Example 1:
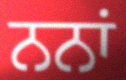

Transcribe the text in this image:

ਨਨਾਂ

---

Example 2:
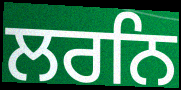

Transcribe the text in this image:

ਲਰਨਿ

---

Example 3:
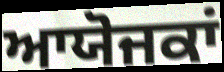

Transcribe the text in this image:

ਆਯੋਜਕਾਂ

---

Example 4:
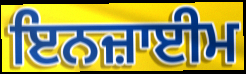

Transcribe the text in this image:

ਇਨਜ਼ਾਈਮ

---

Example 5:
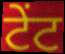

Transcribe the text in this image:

ਟੇਂਟ